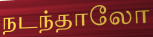
நடந்தாலோ